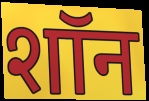
शॉन